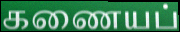
கணையப்